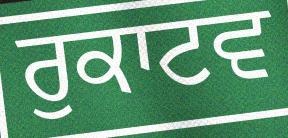
ਰੁਕਾਟਵ